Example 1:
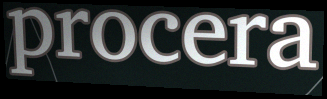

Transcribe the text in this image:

procera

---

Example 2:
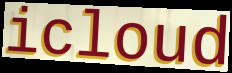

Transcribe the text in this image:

icloud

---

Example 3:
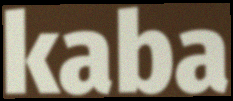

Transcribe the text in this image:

kaba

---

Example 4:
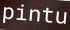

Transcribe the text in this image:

pintu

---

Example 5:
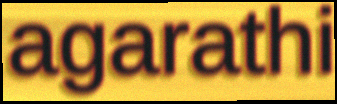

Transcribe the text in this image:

agarathi